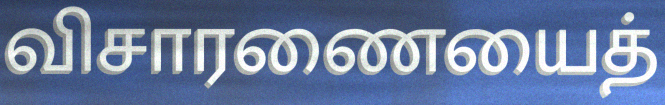
விசாரணையைத்